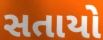
સતાયો